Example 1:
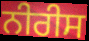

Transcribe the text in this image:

ਨੀਰੀਸ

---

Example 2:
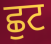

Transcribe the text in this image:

ਛੁਟ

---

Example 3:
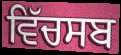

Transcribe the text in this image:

ਵਿੱਚਸਬ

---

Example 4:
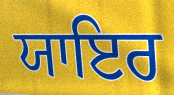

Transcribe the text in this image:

ਯਾਇਰ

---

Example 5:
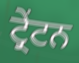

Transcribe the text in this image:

ਟ੍ਰੇਂਟਨ